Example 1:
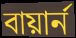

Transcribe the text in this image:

বায়ার্ন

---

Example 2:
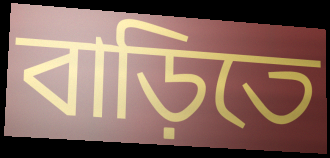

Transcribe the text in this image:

বাড়িতে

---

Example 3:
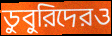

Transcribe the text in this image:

ডুবুরিদেরও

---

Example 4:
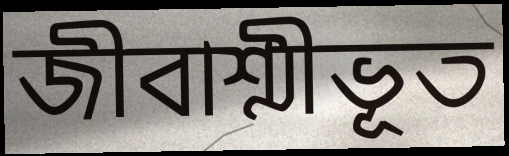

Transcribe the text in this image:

জীবাশ্মীভূত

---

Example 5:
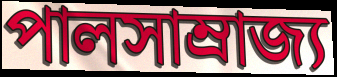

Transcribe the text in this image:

পালসাম্রাজ্য